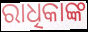
ରାଧିକାଙ୍କ